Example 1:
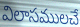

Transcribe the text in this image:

విలాసములచే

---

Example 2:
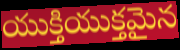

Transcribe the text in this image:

యుక్తియుక్తమైన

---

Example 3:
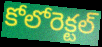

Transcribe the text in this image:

కోలోరెక్టల్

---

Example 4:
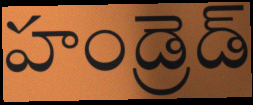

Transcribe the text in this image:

హండ్రెడ్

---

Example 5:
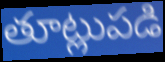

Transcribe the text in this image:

తూట్లుపడి